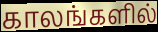
காலங்களில்